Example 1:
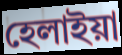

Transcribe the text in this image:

হেলাইয়া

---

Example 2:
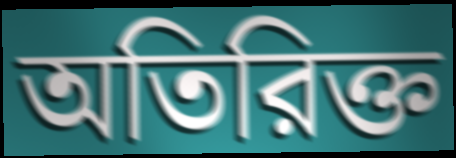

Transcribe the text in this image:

অতিরিক্ত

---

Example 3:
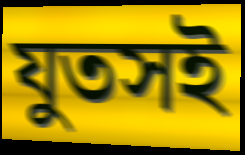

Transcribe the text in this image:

যুতসই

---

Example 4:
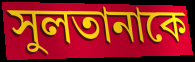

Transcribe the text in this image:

সুলতানাকে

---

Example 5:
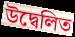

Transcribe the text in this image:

উদ্বেলিত